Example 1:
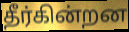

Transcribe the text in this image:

தீர்கின்றன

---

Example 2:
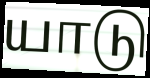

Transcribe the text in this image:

யாடு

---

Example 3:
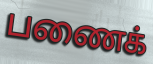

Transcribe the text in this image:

பணைக்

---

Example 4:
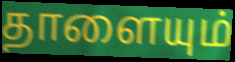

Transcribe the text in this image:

தாளையும்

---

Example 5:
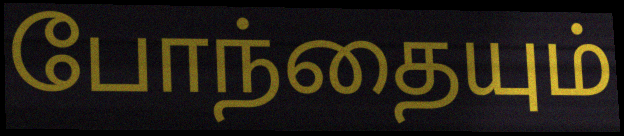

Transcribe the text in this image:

போந்தையும்